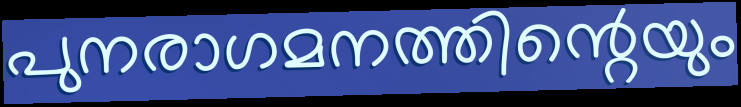
പുനരാഗമനത്തിന്റെയും